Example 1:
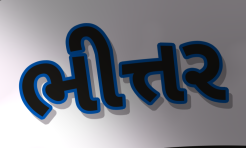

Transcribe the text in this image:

ભીત્તર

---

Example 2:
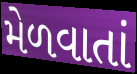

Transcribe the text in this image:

મેળવાતાં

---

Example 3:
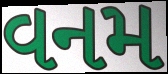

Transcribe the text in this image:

વનમ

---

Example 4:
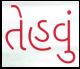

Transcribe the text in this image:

તેહવું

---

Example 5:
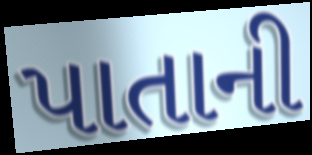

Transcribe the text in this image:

પાતાની